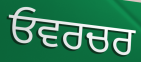
ਓਵਰਚਰ